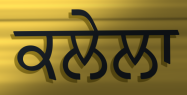
ਕਲੇਲਾ